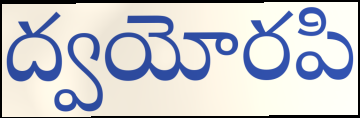
ద్వయోరపి